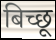
बिच्छू